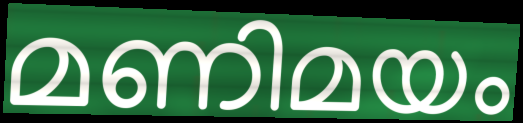
മണിമയം